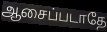
ஆசைப்படாதே